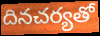
దినచర్యతో